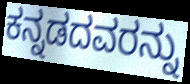
ಕನ್ನಡದವರನ್ನು